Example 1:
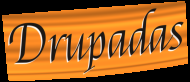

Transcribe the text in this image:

Drupadas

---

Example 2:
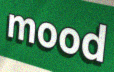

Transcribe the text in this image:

mood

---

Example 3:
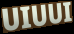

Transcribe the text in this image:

UIUUI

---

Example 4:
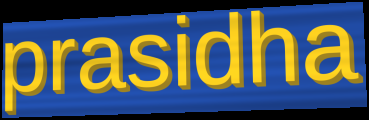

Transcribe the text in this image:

prasidha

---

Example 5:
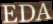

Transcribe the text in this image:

EDA